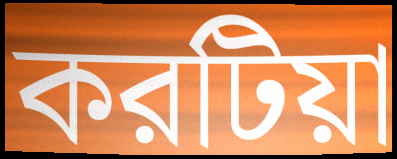
করটিয়া